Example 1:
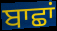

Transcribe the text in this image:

ਬਾਛਾਂ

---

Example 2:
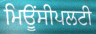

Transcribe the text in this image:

ਮਿਊਂਸੀਪਲਟੀ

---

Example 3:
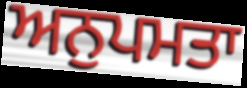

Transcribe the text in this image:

ਅਨੁਪਮਤਾ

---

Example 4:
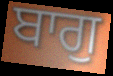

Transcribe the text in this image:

ਬਾਗੁ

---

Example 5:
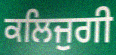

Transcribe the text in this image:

ਕਲਿਜੁਗੀ